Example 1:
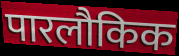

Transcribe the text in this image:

पारलौकिक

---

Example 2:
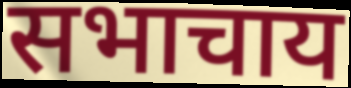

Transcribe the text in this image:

सभाचाय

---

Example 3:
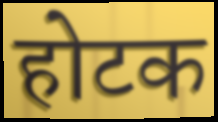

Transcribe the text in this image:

होटक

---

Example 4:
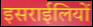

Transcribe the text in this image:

इसराईलियों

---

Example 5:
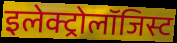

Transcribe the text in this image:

इलेक्ट्रोलॉजिस्ट